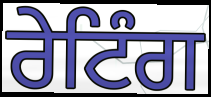
ਰੇਟਿੰਗ